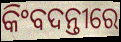
କିଂବଦନ୍ତୀରେ